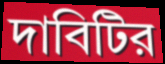
দাবিটির